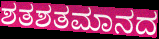
ಶತಶತಮಾನದ